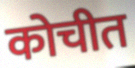
कोचीत